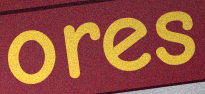
ores